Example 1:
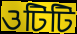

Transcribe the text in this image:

ওটিটি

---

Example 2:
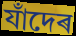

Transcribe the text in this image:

যাঁদেৰ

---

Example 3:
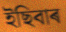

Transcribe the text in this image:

ইছিবাৰ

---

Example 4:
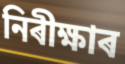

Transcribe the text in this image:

নিৰীক্ষাৰ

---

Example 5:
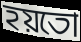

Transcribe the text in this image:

হয়তো